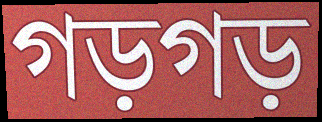
গড়গড়